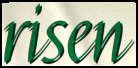
risen